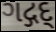
ગદ્ગદ્